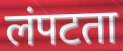
लंपटता